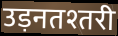
उड़नतश्तरी